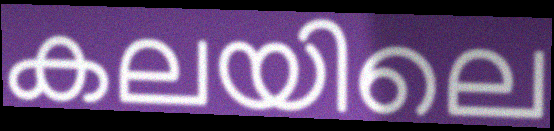
കലയിലെ